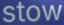
stow